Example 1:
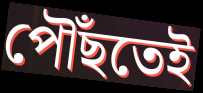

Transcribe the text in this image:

পৌঁছতেই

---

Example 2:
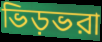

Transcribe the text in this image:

ভিড়ভরা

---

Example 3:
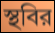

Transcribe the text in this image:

স্থবির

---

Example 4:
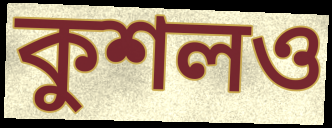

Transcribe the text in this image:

কুশলও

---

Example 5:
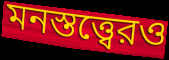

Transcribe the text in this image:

মনস্তত্ত্বেরও